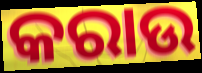
କରାଉ